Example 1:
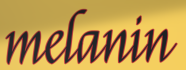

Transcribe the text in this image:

melanin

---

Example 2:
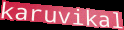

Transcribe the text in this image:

karuvikal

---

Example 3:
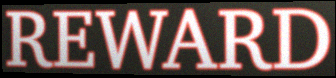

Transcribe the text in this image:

REWARD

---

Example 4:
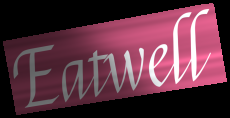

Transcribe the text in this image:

Eatwell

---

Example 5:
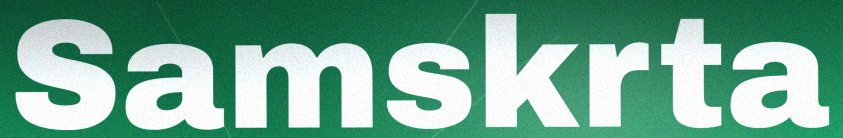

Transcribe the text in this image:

Samskrta